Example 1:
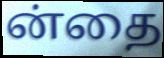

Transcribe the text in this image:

ன்தை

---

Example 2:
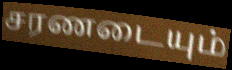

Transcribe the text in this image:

சரணடையும்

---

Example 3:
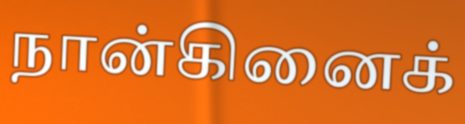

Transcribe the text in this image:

நான்கினைக்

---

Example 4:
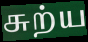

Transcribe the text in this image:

சுற்ய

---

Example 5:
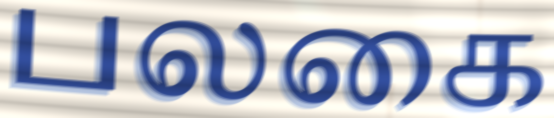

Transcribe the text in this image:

பலகை